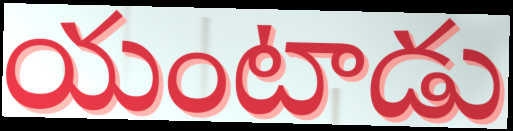
యంటాడు